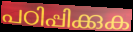
പഠിപ്പിക്കുക